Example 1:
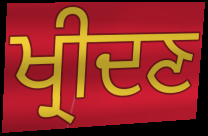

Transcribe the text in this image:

ਖ੍ਰੀਦਣ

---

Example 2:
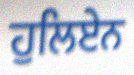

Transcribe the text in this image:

ਹੁਲਿਏਨ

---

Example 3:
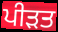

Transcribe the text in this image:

ਪੀਡ਼ਤ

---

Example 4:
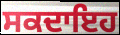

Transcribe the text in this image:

ਸਕਦਾਇਹ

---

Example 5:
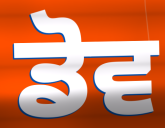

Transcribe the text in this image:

ਡੋਵ